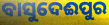
ବାସୁଦେଈପୁର